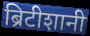
ब्रिटीशानी